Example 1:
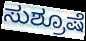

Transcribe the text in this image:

ಸುಶ್ರೂಷೆ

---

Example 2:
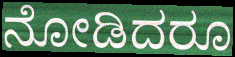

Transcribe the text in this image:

ನೋಡಿದರೂ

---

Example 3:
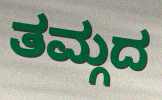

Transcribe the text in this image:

ತಮ್ಗದ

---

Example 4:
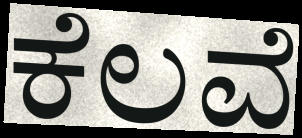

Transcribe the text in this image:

ಕೆಲವೆ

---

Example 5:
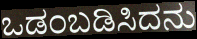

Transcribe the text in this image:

ಒಡಂಬಡಿಸಿದನು